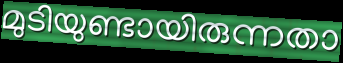
മുടിയുണ്ടായിരുന്നതാ